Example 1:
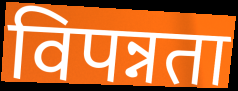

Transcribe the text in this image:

विपन्नता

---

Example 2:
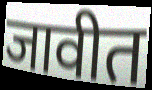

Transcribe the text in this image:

जावीत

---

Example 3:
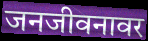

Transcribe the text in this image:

जनजीवनावर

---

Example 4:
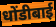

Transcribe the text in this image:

धोंडीबाई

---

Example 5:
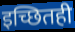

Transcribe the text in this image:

इच्छितही